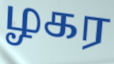
ழகர